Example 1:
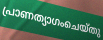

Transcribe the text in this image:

പ്രാണത്യാഗംചെയ്തു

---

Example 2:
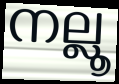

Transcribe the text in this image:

നല്ലൂ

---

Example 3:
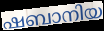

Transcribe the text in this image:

ഷബാനിയ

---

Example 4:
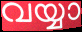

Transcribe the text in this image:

വയ്യാ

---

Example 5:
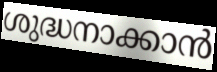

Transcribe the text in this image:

ശുദ്ധനാക്കാൻ